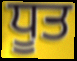
ਧੂਤ